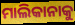
ମାଲିକାନାକୁ